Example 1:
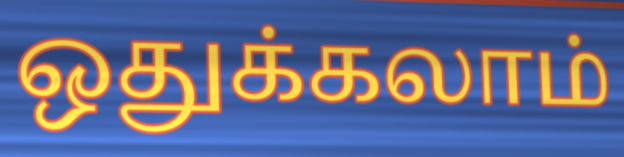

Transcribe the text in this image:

ஒதுக்கலாம்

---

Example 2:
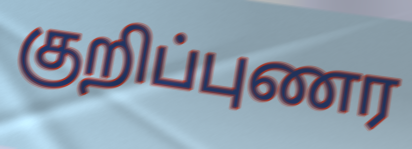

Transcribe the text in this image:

குறிப்புணர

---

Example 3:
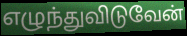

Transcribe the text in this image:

எழுந்துவிடுவேன்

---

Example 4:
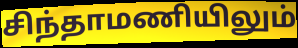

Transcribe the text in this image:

சிந்தாமணியிலும்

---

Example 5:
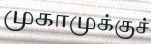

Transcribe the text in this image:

முகாமுக்குச்